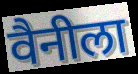
वैनीला